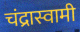
चंद्रास्वामी